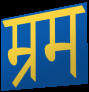
म्रम